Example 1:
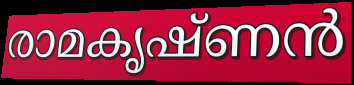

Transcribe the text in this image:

രാമകൃഷ്ണൻ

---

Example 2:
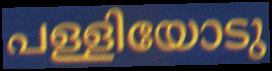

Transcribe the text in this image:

പള്ളിയോടു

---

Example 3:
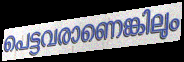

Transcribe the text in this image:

പെട്ടവരാണെങ്കിലും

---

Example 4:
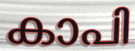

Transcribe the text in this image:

കാപി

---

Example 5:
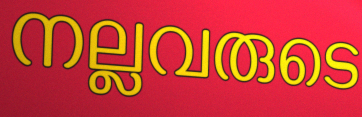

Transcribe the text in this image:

നല്ലവരുടെ